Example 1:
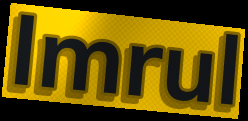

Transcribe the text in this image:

Imrul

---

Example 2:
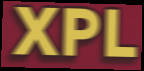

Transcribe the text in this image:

XPL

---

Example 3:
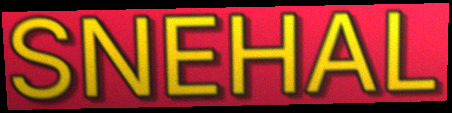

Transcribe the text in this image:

SNEHAL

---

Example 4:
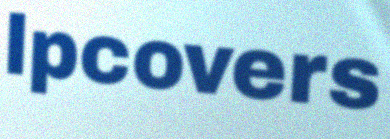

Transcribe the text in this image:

lpcovers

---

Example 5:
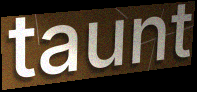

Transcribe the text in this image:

taunt